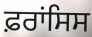
ਫ਼ਰਾਂਸਿਸ